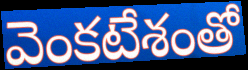
వెంకటేశంతో